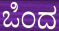
ಒಿಂದ